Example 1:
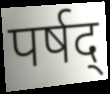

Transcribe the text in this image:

पर्षद्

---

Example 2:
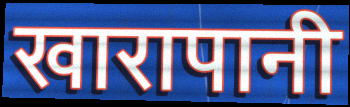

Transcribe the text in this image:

खारापानी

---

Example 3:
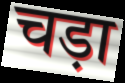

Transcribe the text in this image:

चड़ा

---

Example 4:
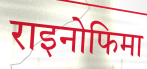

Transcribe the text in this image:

राइनोफिमा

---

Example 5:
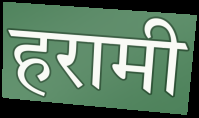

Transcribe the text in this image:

हरामी